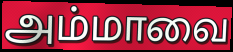
அம்மாவை